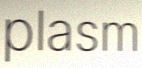
plasm